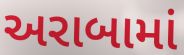
અરાબામાં